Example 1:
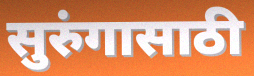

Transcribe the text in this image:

सुरुंगासाठी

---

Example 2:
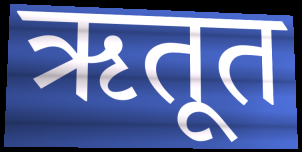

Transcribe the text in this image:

ऋतूत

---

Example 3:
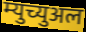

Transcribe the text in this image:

म्युच्युअल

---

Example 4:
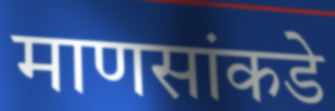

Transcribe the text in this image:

माणसांकडे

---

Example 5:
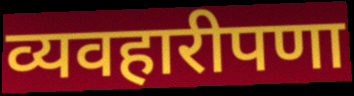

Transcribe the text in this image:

व्यवहारीपणा